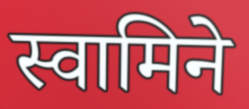
स्वामिने